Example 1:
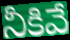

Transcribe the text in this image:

నీకివే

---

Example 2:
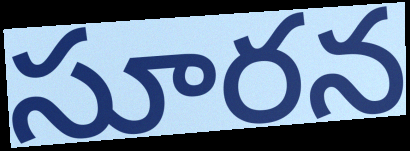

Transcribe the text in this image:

సూరన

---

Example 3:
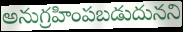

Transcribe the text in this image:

అనుగ్రహింపబడుదునని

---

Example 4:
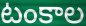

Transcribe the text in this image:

టంకాల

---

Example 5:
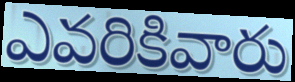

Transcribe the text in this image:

ఎవరికివారు